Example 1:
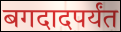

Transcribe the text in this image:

बगदादपर्यंत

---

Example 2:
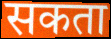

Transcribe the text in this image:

सकता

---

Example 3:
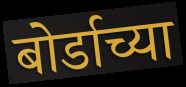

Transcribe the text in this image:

बोर्डाच्या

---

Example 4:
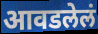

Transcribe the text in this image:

आवडलेलं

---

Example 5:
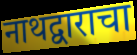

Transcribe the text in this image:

नाथद्वाराचा